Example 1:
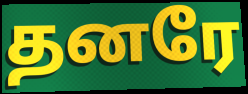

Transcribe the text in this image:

தனரே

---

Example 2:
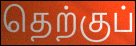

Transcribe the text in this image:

தெற்குப்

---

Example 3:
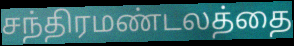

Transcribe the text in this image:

சந்திரமண்டலத்தை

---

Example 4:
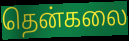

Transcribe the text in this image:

தென்கலை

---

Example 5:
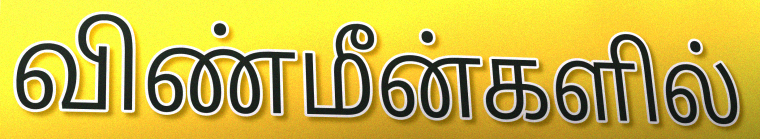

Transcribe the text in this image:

விண்மீன்களில்